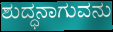
ಶುದ್ಧನಾಗುವನು